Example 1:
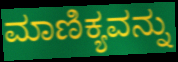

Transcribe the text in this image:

ಮಾಣಿಕ್ಯವನ್ನು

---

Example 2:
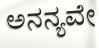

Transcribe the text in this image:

ಅನನ್ಯವೇ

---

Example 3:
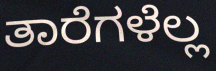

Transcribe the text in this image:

ತಾರೆಗಳೆಲ್ಲ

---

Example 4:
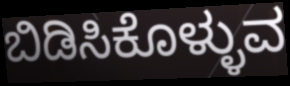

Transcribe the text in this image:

ಬಿಡಿಸಿಕೊಳ್ಳುವ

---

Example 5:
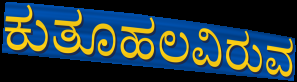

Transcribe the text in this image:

ಕುತೂಹಲವಿರುವ